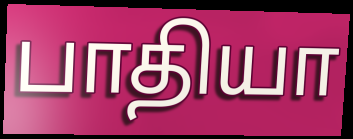
பாதியா